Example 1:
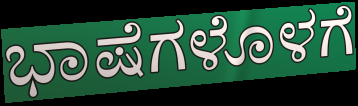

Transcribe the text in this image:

ಭಾಷೆಗಳೊಳಗೆ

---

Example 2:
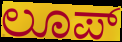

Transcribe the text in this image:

ಲೂಪ್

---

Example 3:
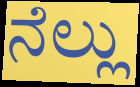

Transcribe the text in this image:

ನೆಲ್ಲು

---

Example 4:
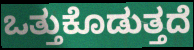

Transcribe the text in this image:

ಒತ್ತುಕೊಡುತ್ತದೆ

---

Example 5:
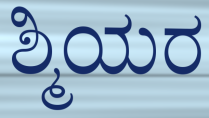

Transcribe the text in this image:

ಶ್ಮಿಯರ